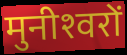
मुनीश्वरों